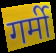
गर्मी